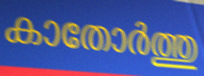
കാതോർത്തു